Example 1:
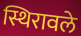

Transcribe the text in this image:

स्थिरावले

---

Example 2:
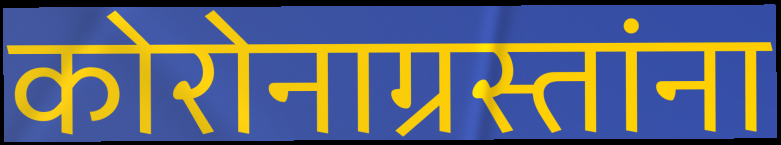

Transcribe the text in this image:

कोरोनाग्रस्तांना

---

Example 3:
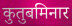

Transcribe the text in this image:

कुतुबमिनार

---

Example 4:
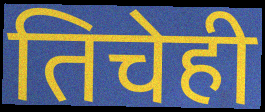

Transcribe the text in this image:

तिचेही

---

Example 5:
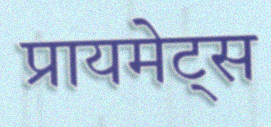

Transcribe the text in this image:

प्रायमेट्स